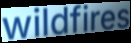
wildfires